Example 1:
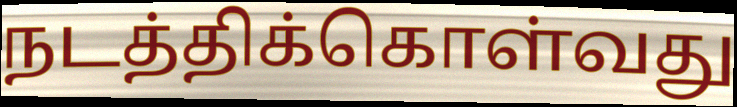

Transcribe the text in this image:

நடத்திக்கொள்வது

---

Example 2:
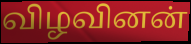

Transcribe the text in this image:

விழவினன்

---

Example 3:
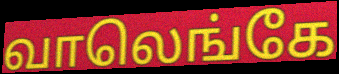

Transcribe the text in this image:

வாலெங்கே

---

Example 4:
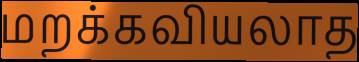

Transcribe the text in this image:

மறக்கவியலாத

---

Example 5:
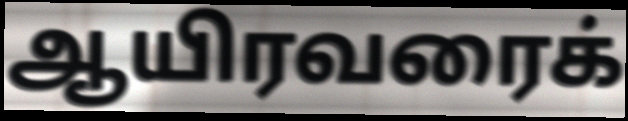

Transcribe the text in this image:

ஆயிரவரைக்